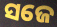
ସଜେ